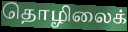
தொழிலைக்